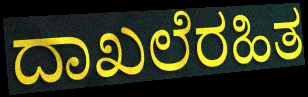
ದಾಖಲೆರಹಿತ